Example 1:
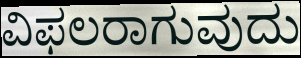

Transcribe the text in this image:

ವಿಫಲರಾಗುವುದು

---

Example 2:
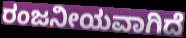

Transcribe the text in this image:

ರಂಜನೀಯವಾಗಿದೆ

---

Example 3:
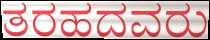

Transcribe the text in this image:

ತರಹದವರು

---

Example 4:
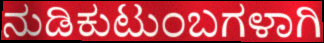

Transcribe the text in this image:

ನುಡಿಕುಟುಂಬಗಳಾಗಿ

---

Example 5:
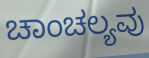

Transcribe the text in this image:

ಚಾಂಚಲ್ಯವು